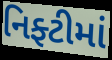
નિફ્ટીમાં